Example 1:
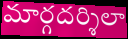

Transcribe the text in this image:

మార్గదర్శిలా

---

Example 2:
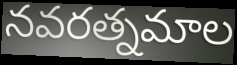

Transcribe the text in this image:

నవరత్నమాల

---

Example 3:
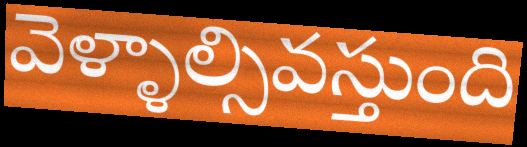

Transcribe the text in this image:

వెళ్ళాల్సివస్తుంది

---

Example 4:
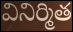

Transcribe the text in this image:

వినిర్మిత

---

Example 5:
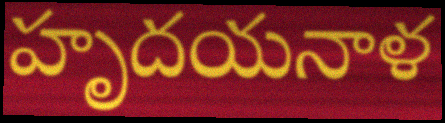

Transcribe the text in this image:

హృదయనాళ